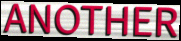
ANOTHER